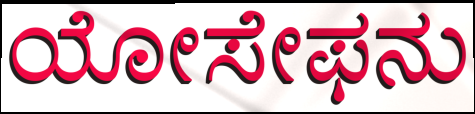
ಯೋಸೇಫನು